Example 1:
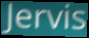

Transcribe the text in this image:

Jervis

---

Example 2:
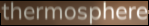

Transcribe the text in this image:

thermosphere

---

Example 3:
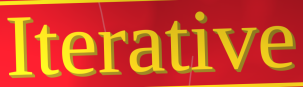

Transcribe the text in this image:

Iterative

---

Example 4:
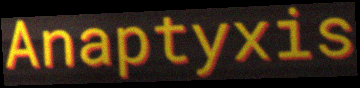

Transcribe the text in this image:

Anaptyxis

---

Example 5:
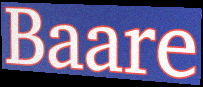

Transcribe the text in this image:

Baare